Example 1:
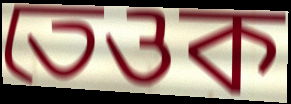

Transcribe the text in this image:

তেওক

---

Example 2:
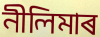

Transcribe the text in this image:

নীলিমাৰ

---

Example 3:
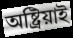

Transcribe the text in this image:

অষ্ট্ৰিয়াই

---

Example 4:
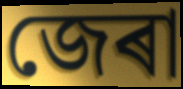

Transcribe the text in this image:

জেৰা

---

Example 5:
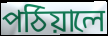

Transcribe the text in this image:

পঠিয়ালে